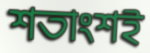
শতাংশই